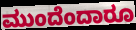
ಮುಂದೆಂದಾರೂ